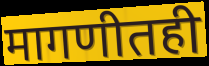
मागणीतही